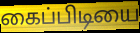
கைப்பிடியை